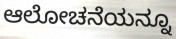
ಆಲೋಚನೆಯನ್ನೂ